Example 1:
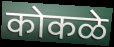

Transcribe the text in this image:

कोकळे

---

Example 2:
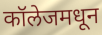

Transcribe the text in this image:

कॉलेजमधून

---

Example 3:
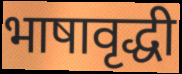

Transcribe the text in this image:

भाषावृद्धी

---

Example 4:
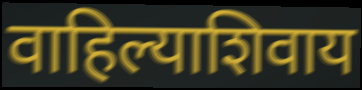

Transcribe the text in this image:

वाहिल्याशिवाय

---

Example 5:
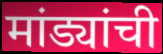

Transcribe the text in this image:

मांड्यांची